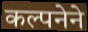
कल्पनेने